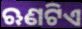
ଋଣଟିଏ